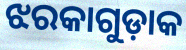
ଝରକାଗୁଡ଼ାକ